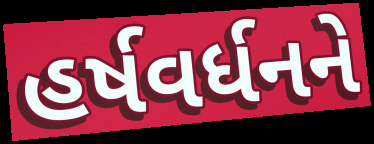
હર્ષવર્ધનને